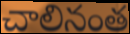
చాలినంత